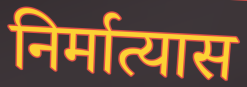
निर्मात्यास